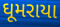
ઘૂમરાયા